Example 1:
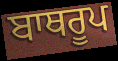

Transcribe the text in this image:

ਬਾਥਰੂਪ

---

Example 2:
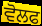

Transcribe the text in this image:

ਵੋਲਫ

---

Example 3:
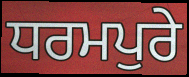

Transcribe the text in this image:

ਧਰਮਪੁਰੇ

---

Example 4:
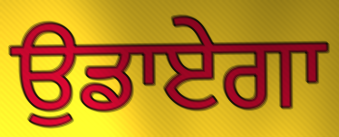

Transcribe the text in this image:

ਉਡਾਏਗਾ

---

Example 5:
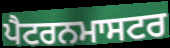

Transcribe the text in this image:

ਪੈਟਰਨਮਾਸਟਰ